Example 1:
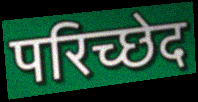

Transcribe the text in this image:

परिच्छेद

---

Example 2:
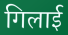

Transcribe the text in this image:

गिलाई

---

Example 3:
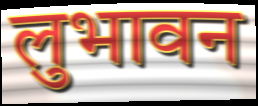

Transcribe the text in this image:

लुभावन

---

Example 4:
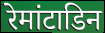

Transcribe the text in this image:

रेमांटाडिन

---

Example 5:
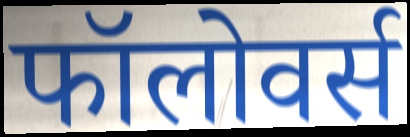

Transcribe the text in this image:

फॉलोवर्स